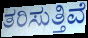
ತರಿಸುತ್ತಿವೆ